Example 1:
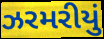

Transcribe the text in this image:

ઝરમરીયું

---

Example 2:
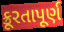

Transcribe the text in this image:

ક્રૂરતાપૂર્ણ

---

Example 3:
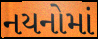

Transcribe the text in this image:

નયનોમાં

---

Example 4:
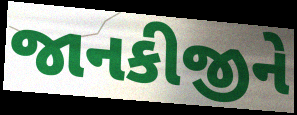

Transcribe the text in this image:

જાનકીજીને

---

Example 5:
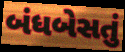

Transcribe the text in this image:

બંધબેસતું